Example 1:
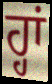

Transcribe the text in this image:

ਹ੍ਹਾਂ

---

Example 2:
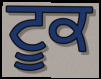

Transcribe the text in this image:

ਟੂਕ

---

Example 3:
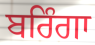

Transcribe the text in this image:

ਬਰਿੰਗਾ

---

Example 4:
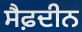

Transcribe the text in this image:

ਸੈਫ਼ਦੀਨ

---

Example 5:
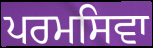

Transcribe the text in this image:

ਪਰਮਸਿਵਾ